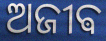
ଅଜୀଵ